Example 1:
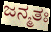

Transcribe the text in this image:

ಜನ್ಮತಃ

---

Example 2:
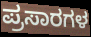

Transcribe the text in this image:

ಪ್ರಸಾರಗಳ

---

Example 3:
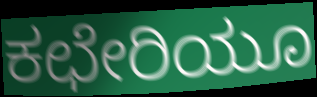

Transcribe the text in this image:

ಕಛೇರಿಯೂ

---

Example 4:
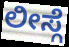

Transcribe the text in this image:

ಲೀಸ್ಗೆ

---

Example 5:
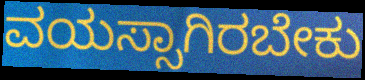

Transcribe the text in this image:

ವಯಸ್ಸಾಗಿರಬೇಕು